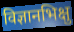
विज्ञानभिक्षु